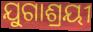
ଯୁଗାଶ୍ରୟୀ